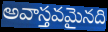
అవాస్తవమైనది